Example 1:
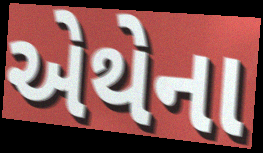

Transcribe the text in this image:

એથેના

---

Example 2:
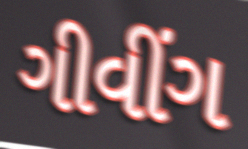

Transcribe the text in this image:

ગીવીંગ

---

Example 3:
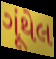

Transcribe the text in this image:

ગૂંથેલ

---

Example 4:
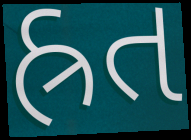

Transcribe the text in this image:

હ્રત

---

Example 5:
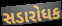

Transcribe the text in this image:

સડારોધક